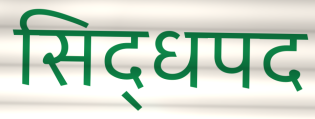
सिद्धपद